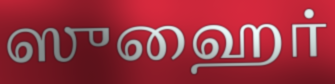
ஸுஹைர்